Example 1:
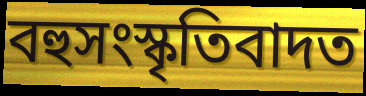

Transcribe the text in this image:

বহুসংস্কৃতিবাদত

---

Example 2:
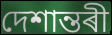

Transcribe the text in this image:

দেশান্তৰী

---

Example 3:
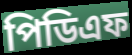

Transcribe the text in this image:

পিডিএফ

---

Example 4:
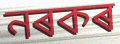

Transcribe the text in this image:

নৰকৰ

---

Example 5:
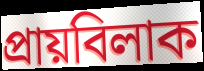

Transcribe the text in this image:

প্ৰায়বিলাক